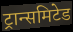
ट्रान्समिटेड